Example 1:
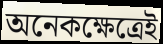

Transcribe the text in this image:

অনেকক্ষেত্রেই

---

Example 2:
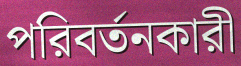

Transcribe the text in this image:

পরিবর্তনকারী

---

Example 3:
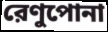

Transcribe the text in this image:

রেণুপোনা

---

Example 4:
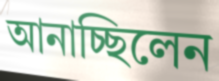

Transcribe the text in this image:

আনাচ্ছিলেন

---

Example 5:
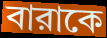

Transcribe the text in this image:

বারাকে